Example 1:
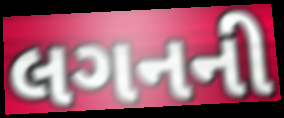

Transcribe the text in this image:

લગનની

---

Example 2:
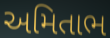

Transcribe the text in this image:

અમિતાભ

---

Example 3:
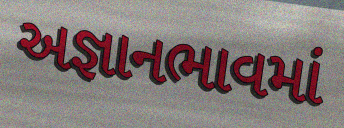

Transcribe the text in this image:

અજ્ઞાનભાવમાં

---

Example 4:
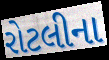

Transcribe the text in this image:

રોટલીના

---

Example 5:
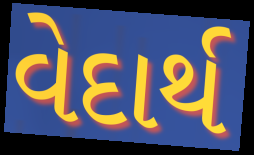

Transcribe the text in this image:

વેદાર્થ